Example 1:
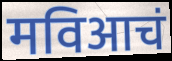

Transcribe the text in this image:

मविआचं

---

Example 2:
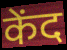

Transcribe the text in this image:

केंद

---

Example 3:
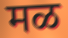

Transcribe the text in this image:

मळ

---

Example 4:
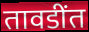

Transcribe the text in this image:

तावडींत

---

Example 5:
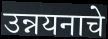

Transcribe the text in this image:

उन्नयनाचे